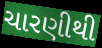
ચારણીથી